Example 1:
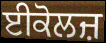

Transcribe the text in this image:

ਈਕੋਲਜ਼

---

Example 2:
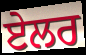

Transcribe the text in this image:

ਏਲਰ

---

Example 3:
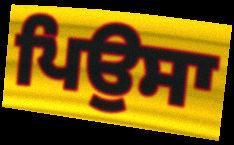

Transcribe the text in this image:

ਪਿਉਸਾ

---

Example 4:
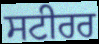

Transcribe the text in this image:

ਸਟੀਰਰ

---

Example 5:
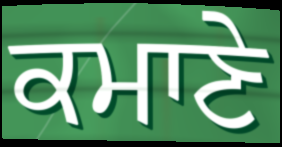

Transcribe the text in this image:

ਕਮਾਣੇ